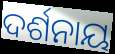
ଦର୍ଶନାୟ